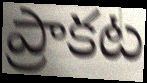
ప్రాకట